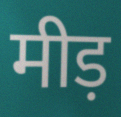
मीड़